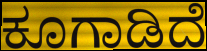
ಕೂಗಾಡಿದೆ